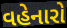
વહેનારો